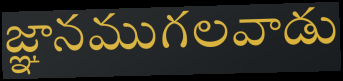
జ్ఞానముగలవాడు